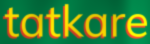
tatkare